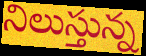
నిలుస్తున్న